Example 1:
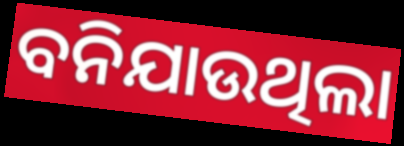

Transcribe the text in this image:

ବନିଯାଉଥିଲା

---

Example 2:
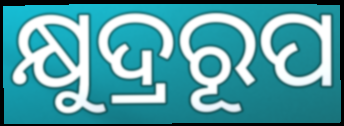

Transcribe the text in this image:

କ୍ଷୁଦ୍ରରୂପ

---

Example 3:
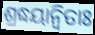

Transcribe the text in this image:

ଶ୍ରଦ୍ଧୟାନ୍ୱିତାଃ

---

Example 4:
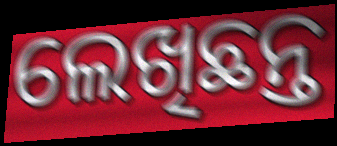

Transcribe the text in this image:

ଲେଖିଛନ୍ତ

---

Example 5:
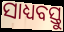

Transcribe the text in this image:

ସାଧ୍ୟବସ୍ତୁ